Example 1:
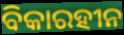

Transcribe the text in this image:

ବିକାରହୀନ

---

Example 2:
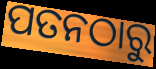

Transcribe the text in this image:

ପତନଠାରୁ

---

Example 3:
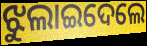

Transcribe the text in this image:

ଝୁଲାଇଦେଲେ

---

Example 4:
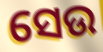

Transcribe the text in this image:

ସେଉ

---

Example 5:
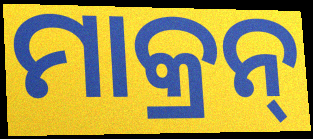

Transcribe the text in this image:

ମାକ୍ରନ୍